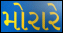
મોરારે